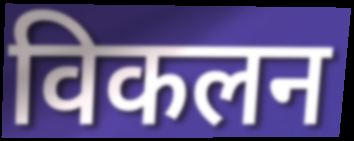
विकलन